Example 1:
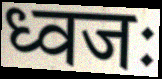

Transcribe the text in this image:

ध्वजः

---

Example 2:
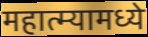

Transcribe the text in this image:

महात्म्यामध्ये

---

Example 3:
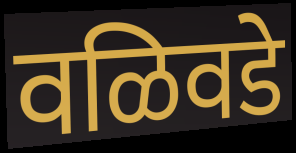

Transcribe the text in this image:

वळिवडे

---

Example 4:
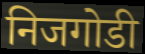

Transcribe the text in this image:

निजगोडी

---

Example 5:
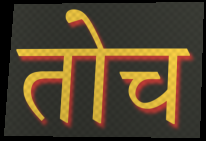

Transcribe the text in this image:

तोच